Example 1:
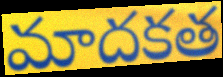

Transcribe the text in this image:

మాదకత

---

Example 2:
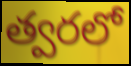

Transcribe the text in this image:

త్వరలో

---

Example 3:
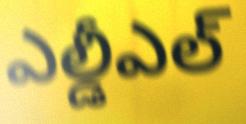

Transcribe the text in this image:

ఎల్డీఎల్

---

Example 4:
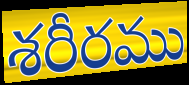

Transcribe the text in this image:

శరీరము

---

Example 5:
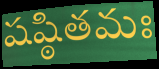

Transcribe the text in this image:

షష్ఠితమః